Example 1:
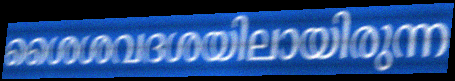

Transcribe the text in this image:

ശൈശവദശയിലായിരുന്ന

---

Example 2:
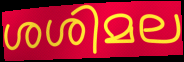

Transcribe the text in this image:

ശശിമല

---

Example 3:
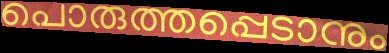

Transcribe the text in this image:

പൊരുത്തപ്പെടാനും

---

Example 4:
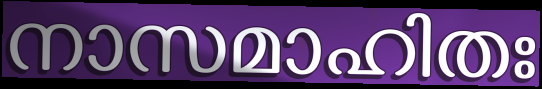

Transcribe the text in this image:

നാസമാഹിതഃ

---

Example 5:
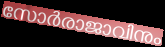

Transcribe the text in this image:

സോർരാജാവിനും